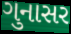
ગુનાસર